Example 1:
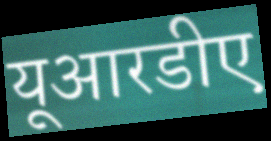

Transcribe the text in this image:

यूआरडीए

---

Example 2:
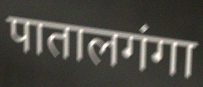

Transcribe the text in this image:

पातालगंगा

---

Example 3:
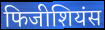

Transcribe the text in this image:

फिजीशियंस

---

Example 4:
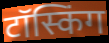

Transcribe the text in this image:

टॉस्किंग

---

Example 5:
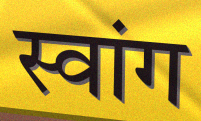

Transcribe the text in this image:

स्‍वांग